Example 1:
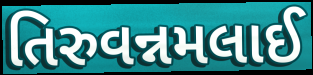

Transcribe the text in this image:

તિરુવન્નમલાઈ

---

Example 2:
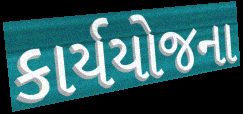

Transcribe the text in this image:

કાર્યયોજના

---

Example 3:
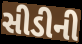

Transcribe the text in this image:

સીડીની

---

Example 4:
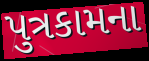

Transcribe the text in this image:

પુત્રકામના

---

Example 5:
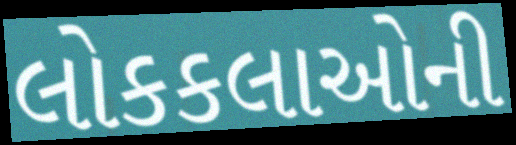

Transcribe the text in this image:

લોકકલાઓની